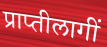
प्राप्तीलागीं